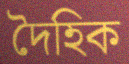
দৈহিক